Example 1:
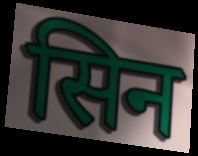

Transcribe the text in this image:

सिन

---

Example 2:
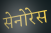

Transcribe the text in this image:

सेनोरेस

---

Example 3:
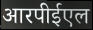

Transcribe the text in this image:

आरपीईएल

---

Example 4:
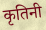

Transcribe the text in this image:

कृतिनी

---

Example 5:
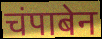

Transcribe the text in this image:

चंपाबेन